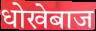
धोखेबाज